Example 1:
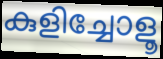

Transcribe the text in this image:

കുളിച്ചോളൂ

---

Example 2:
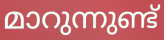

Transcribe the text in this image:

മാറുന്നുണ്ട്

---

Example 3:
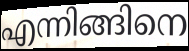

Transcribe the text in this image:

എന്നിങ്ങിനെ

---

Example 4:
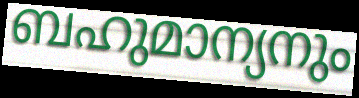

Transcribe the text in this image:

ബഹുമാന്യനും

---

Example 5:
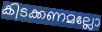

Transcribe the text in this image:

കിടക്കണമല്ലോ